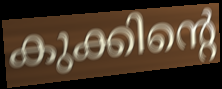
കുക്കിന്റെ